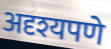
अदृश्यपणे